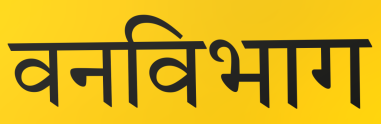
वनविभाग